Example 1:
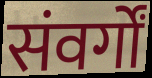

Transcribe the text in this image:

संवर्गों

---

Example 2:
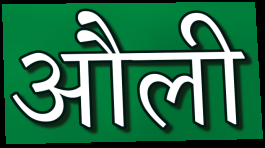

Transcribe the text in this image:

औली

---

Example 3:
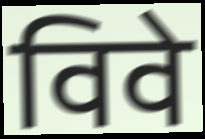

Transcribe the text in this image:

विवे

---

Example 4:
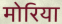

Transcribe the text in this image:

मोरिया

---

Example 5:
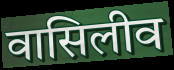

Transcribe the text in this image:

वासिलीव